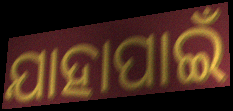
ଯାହାପାଇଁ